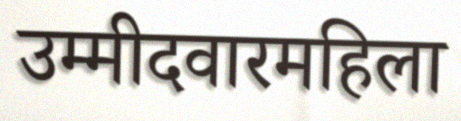
उम्मीदवारमहिला